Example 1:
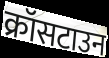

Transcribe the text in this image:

क्रॉसटाउन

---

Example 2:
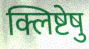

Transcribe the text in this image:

क्लिष्टेषु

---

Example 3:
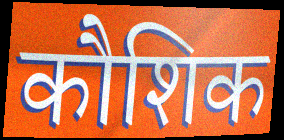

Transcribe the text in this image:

कौशिक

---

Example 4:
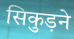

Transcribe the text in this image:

सिकुड़ने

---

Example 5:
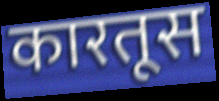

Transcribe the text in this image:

कारतूस